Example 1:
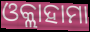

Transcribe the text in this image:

ଓକ୍ଲାହାମା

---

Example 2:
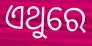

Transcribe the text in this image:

ଏଥୁରେ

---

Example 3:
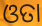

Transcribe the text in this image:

ଓତା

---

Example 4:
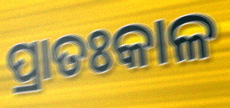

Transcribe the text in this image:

ପ୍ରାତଃକାଳ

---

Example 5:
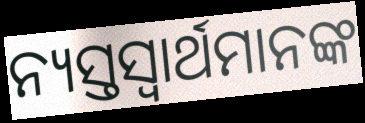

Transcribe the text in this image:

ନ୍ୟସ୍ତସ୍ଵାର୍ଥମାନଙ୍କ